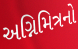
અગ્નિમિત્રનો